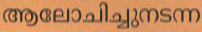
ആലോചിച്ചുനടന്ന